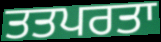
ਤਤਪਰਤਾ